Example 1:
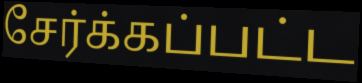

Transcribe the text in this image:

சேர்க்கப்பட்ட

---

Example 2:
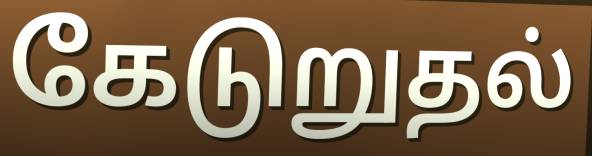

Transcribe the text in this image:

கேடுறுதல்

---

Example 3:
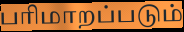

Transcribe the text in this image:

பரிமாறப்படும்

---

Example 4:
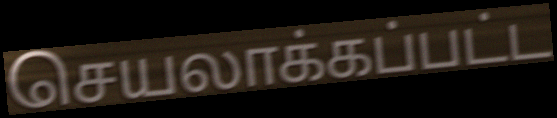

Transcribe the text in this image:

செயலாக்கப்பட்ட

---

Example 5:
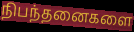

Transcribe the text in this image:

நிபந்தனைகளை